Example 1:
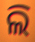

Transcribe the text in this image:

ଲି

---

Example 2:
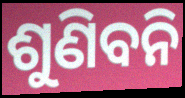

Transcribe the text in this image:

ଶୁଣିବନି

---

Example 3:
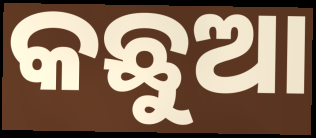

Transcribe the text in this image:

କଛୁଆ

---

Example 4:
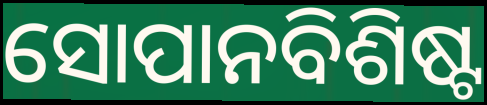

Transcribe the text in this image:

ସୋପାନବିଶିଷ୍ଟ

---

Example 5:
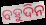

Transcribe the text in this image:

ବହୁଦିନ